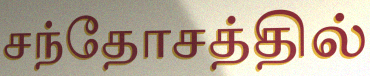
சந்தோசத்தில்